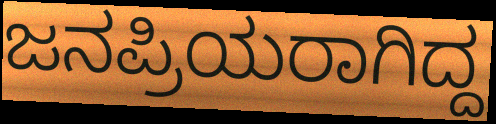
ಜನಪ್ರಿಯರಾಗಿದ್ದ